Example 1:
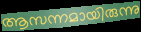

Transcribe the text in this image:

ആസന്നമായിരുന്നു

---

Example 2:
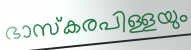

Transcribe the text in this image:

ഭാസ്കരപിള്ളയും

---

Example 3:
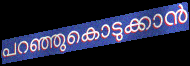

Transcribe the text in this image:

പറഞ്ഞുകൊടുക്കാൻ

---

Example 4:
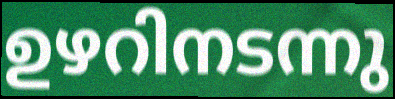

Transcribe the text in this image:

ഉഴറിനടന്നു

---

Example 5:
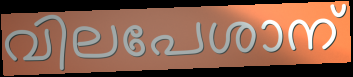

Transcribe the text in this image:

വിലപേശാന്